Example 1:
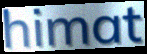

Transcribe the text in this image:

himat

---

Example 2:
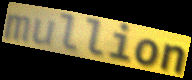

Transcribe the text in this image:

mullion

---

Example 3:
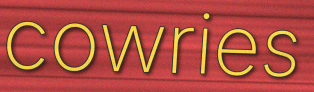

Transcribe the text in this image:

cowries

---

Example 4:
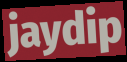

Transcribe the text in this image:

jaydip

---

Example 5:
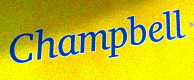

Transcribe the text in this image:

Champbell